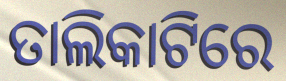
ତାଲିକାଟିରେ